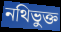
নথিভুক্ত